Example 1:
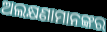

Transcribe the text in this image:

ଅଲକ୍ଷଣାମାନଙ୍କର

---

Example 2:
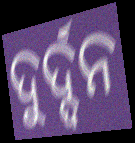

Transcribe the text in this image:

ଦୁର୍ଦ୍ଦନ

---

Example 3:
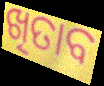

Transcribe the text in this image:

ଖିତାବ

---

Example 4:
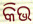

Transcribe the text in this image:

କିଭ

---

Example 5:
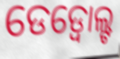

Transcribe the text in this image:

ଡେଡ୍ବୋଲ୍ଟ